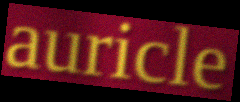
auricle